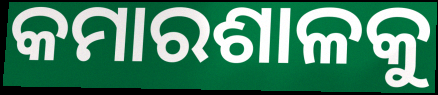
କମାରଶାଳକୁ